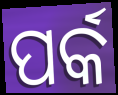
ପର୍କ